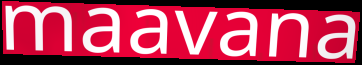
maavana